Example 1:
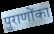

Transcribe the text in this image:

पुराणोंका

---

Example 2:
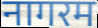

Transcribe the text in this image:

नागरम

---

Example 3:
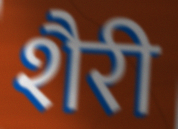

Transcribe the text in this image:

शैरी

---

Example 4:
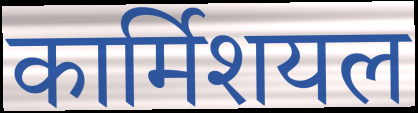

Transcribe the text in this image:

कार्मिशयल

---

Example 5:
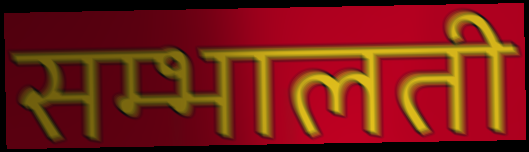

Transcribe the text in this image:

सम्भालती